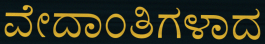
ವೇದಾಂತಿಗಳಾದ